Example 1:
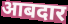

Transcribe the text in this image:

आबदार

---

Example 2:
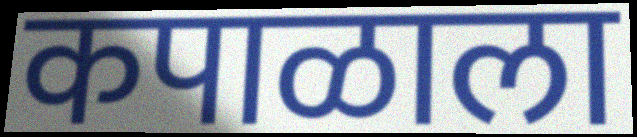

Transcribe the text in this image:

कपाळाला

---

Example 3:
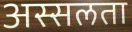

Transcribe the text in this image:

अस्सलता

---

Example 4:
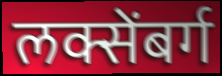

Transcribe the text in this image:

लक्सेंबर्ग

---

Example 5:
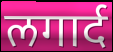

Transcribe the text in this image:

लगार्द